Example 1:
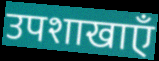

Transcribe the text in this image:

उपशाखाएँ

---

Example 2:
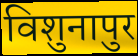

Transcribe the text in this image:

विशुनापुर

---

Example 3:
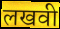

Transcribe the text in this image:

लखवी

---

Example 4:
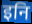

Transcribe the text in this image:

इनि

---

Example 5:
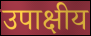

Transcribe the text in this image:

उपाक्षीय